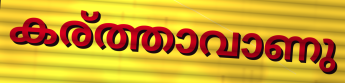
കര്ത്താവാണു